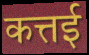
कत्तई